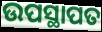
ଉପସ୍ଥାପତ